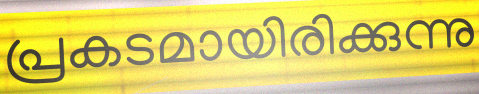
പ്രകടമായിരിക്കുന്നു